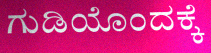
ಗುಡಿಯೊಂದಕ್ಕೆ